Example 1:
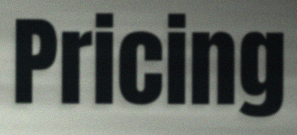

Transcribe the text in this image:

Pricing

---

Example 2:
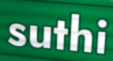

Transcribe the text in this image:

suthi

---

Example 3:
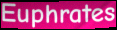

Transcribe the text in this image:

Euphrates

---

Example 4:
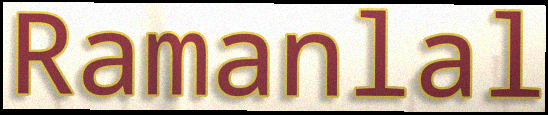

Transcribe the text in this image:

Ramanlal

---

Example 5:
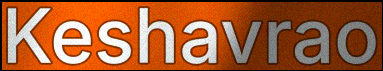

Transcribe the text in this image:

Keshavrao